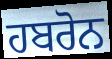
ਹਬਰੋਨ